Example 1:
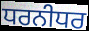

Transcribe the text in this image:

ਧਰਨੀਧਰ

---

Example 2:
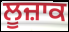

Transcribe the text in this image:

ਲੂਜ਼ਾਕ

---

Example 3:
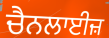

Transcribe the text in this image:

ਚੈਨਲਾਈਜ਼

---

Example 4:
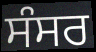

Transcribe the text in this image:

ਸੰਸਰ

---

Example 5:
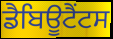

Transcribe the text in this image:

ਡੈਬਿਊਟੈਂਟਸ